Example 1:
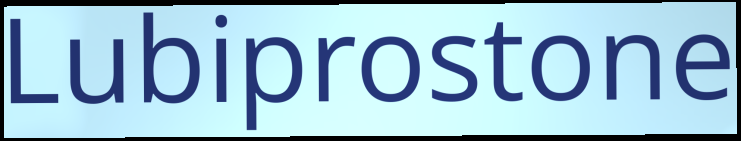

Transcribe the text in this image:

Lubiprostone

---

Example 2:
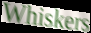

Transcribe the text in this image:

Whiskers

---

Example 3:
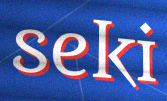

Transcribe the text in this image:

seki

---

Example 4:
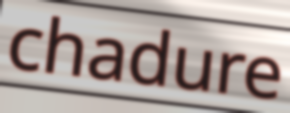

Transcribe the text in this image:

chadure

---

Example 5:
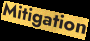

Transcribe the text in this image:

Mitigation